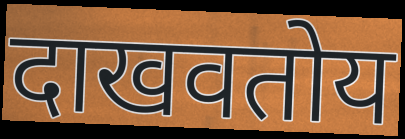
दाखवतोय